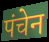
पंचेन